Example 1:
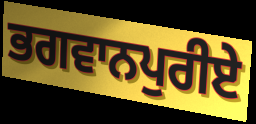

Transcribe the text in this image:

ਭਗਵਾਨਪੁਰੀਏ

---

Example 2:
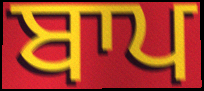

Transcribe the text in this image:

ਬਾਪ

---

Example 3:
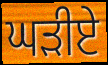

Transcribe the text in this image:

ਘੜੀਏ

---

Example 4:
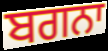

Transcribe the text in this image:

ਬਗਨਾ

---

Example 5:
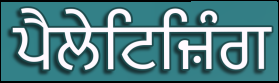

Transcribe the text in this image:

ਪੈਲੇਟਿਜ਼ਿੰਗ